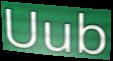
Uub